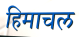
हिमाचल